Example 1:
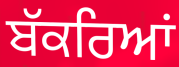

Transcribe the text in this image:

ਬੱਕਰਿਆਂ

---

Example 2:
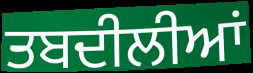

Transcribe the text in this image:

ਤਬਦੀਲੀਆਂ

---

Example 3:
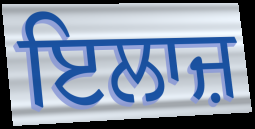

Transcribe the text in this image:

ਇਲਾਜ਼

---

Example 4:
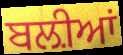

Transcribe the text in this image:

ਬਲ਼ੀਆਂ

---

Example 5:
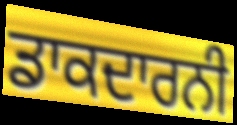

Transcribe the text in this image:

ਡਾਕਦਾਰਨੀ